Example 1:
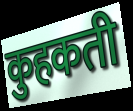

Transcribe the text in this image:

कुहकती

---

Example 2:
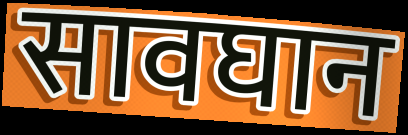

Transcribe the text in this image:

सावघान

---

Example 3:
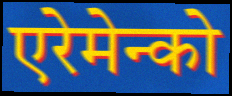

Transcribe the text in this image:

एरेमेन्को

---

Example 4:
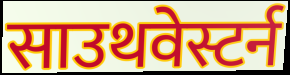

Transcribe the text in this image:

साउथवेस्टर्न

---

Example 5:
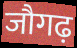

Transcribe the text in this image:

जौगढ़